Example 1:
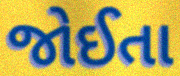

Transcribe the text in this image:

જોઈતા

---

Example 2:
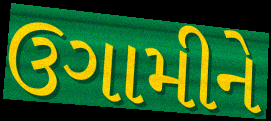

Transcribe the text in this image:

ઉગામીને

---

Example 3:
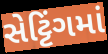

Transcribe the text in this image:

સેટ્ટિંગમાં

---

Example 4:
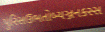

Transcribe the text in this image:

પુરિસઉભતોબ્યઞ્જનકસ્સ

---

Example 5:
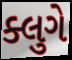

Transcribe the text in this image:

ક્લુગે